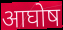
आघोष